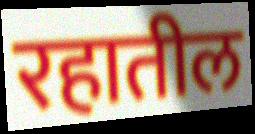
रहातील